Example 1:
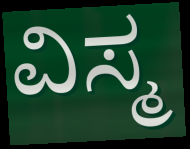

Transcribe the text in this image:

ವಿಸ್ಮ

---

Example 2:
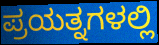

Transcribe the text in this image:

ಪ್ರಯತ್ನಗಳಲ್ಲಿ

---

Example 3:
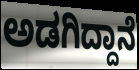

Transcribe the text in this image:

ಅಡಗಿದ್ದಾನೆ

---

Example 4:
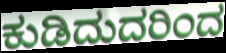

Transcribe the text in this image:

ಕುಡಿದುದರಿಂದ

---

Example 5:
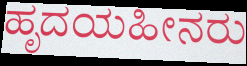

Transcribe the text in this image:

ಹೃದಯಹೀನರು